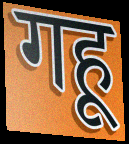
गहू